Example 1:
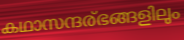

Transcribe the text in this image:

കഥാസന്ദര്ഭങ്ങളിലും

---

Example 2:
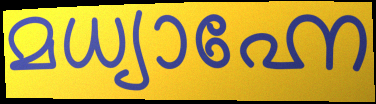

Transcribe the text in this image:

മധ്യാഹ്നേ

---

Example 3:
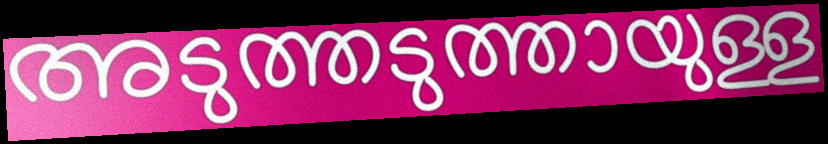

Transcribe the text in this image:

അടുത്തടുത്തായുള്ള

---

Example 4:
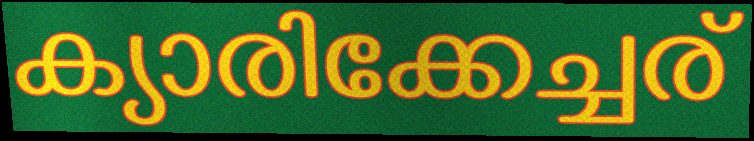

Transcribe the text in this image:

ക്യാരിക്കേച്ചര്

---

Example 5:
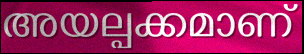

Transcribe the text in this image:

അയല്പക്കമാണ്